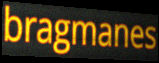
bragmanes